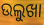
ଉଲୁଖା